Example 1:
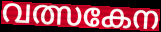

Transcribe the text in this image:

വത്സകേന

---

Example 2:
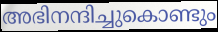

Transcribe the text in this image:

അഭിനന്ദിച്ചുകൊണ്ടും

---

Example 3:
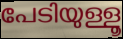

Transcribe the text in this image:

പേടിയുള്ളൂ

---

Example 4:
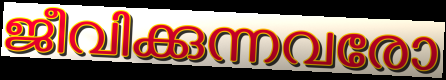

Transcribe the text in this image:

ജീവിക്കുന്നവരോ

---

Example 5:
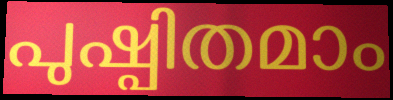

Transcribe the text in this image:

പുഷ്പിതമാം